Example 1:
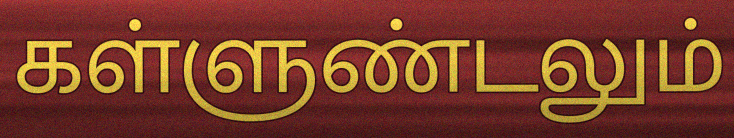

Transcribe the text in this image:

கள்ளுண்டலும்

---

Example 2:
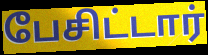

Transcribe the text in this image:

பேசிட்டார்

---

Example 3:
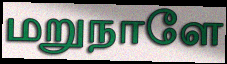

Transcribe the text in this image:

மறுநாளே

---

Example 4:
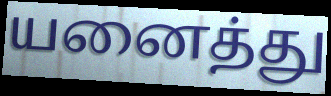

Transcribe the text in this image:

யனைத்து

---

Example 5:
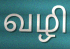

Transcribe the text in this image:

வழி